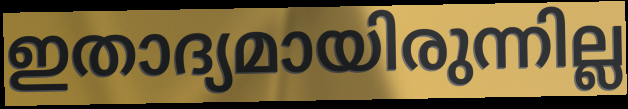
ഇതാദ്യമായിരുന്നില്ല